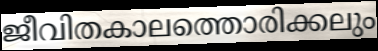
ജീവിതകാലത്തൊരിക്കലും